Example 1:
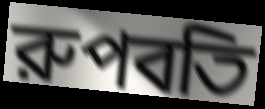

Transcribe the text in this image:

রুপবতি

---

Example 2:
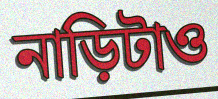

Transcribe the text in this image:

নাড়িটাও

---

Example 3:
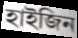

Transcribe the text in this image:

হাইজিন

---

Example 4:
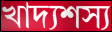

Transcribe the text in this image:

খাদ্যশস্য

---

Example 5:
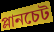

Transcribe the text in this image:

প্লানচেট